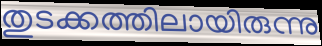
തുടക്കത്തിലായിരുന്നു